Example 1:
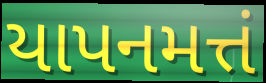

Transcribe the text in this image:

યાપનમત્તં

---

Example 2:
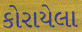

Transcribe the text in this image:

કોરાયેલા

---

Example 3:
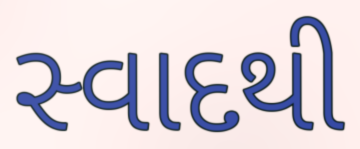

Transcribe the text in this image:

સ્વાદથી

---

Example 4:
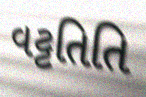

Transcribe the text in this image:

વટ્ટતિતિ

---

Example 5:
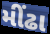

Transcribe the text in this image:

મીંઢા